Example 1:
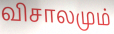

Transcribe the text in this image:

விசாலமும்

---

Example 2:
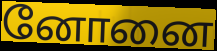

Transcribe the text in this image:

னோனை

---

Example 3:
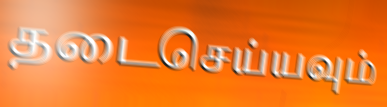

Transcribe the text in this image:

தடைசெய்யவும்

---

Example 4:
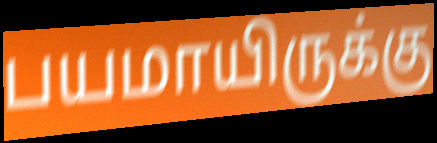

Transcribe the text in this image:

பயமாயிருக்கு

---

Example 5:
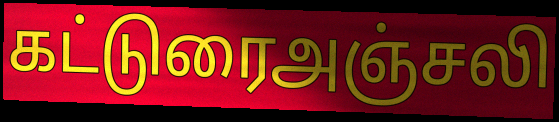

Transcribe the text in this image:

கட்டுரைஅஞ்சலி